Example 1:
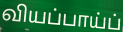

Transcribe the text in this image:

வியப்பாய்ப்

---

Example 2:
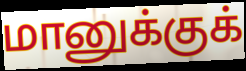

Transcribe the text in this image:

மானுக்குக்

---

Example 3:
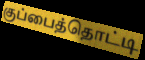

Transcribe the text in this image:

குப்பைத்தொட்டி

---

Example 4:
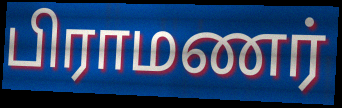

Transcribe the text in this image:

பிராமணர்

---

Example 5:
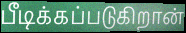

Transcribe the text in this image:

பீடிக்கப்படுகிறான்